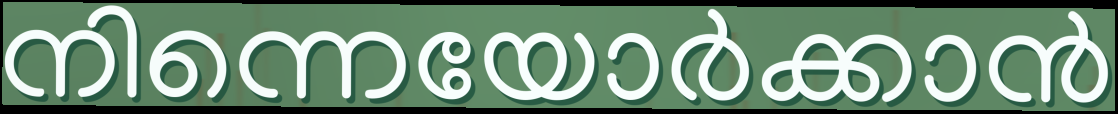
നിന്നെയോർക്കാൻ